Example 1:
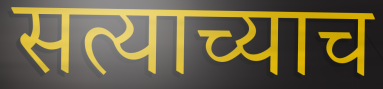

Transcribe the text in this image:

सत्याच्याच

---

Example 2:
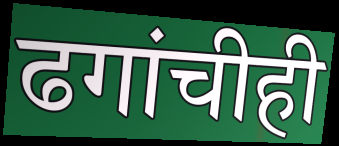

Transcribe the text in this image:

ढगांचीही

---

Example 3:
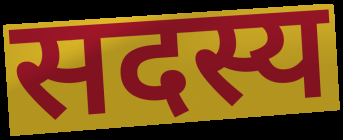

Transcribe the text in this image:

सदस्य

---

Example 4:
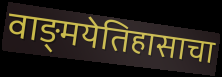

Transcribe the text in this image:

वाङ्मयेतिहासाचा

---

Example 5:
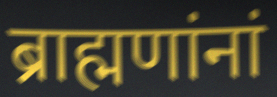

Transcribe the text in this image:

ब्राह्मणांनां